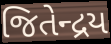
જિતેન્દ્રય